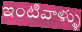
ఇంటివాళ్ళు